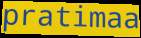
pratimaa